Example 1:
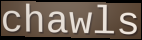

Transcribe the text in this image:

chawls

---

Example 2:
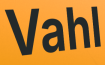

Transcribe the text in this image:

Vahl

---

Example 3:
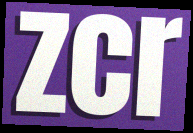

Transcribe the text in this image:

zcr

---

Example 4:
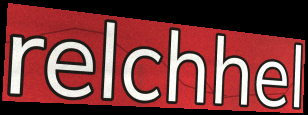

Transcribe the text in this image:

relchhel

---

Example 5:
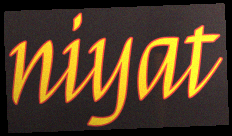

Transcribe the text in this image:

niyat